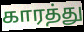
காரத்து